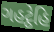
ગહટ્ઠેહિ